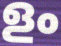
ളം